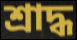
শ্রাদ্ধ